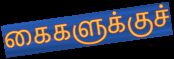
கைகளுக்குச்